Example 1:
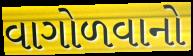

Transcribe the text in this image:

વાગોળવાનો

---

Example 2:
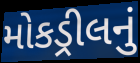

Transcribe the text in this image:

મોકડ્રીલનું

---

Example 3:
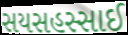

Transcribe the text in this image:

સયસહસ્સાઈ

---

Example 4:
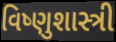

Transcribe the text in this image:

વિષ્ણુશાસ્ત્રી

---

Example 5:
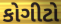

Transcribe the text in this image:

કોગીટો